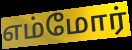
எம்மோர்